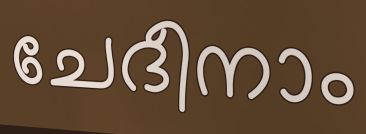
ചേദീനാം